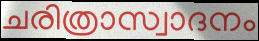
ചരിത്രാസ്വാദനം